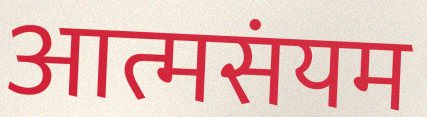
आत्मसंयम